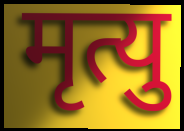
मृत्यु